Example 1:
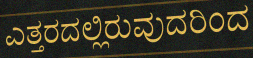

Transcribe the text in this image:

ಎತ್ತರದಲ್ಲಿರುವುದರಿಂದ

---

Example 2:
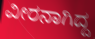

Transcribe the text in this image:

ವೀರನಾಗಿದ್ದ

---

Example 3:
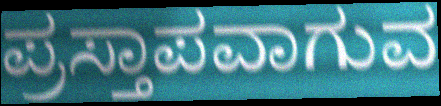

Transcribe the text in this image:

ಪ್ರಸ್ತಾಪವಾಗುವ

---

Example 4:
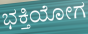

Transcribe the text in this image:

ಭಕ್ತಿಯೋಗ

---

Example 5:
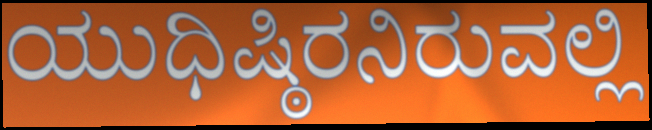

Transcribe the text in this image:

ಯುಧಿಷ್ಠಿರನಿರುವಲ್ಲಿ